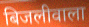
बिजलीवाला